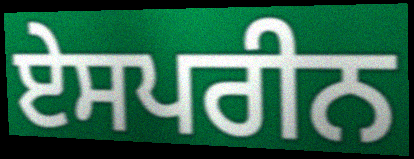
ਏਸਪਰੀਨ